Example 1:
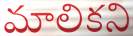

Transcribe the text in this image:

మాలికని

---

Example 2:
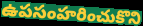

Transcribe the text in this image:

ఉపసంహరించుకొని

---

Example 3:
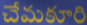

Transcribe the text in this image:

చేమకూరి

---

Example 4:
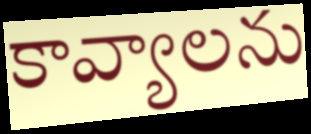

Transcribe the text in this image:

కావ్యాలను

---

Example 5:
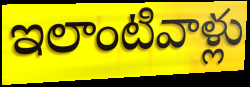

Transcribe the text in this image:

ఇలాంటివాళ్లు